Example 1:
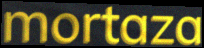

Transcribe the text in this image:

mortaza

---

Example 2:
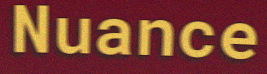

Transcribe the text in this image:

Nuance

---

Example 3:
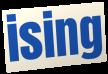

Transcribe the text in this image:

ising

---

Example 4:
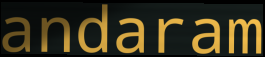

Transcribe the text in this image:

andaram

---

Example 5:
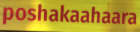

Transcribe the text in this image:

poshakaahaara